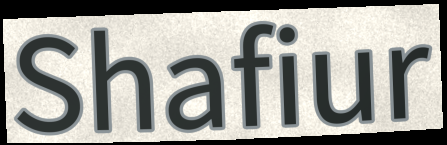
Shafiur